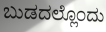
ಬುಡದಲ್ಲೊಂದು